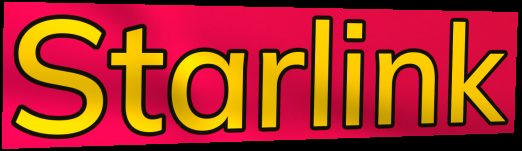
Starlink